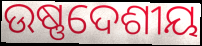
ଉଷ୍ଣଦେଶୀୟ